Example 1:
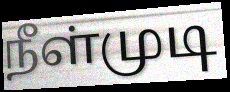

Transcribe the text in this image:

நீள்முடி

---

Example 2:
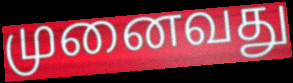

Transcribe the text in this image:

முனைவது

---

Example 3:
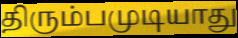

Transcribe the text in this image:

திரும்பமுடியாது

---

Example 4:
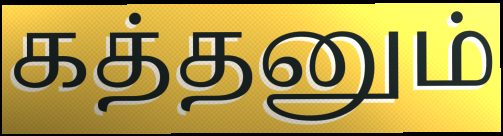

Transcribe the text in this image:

கத்தனும்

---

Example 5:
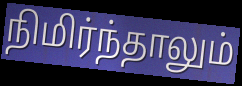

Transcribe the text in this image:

நிமிர்ந்தாலும்